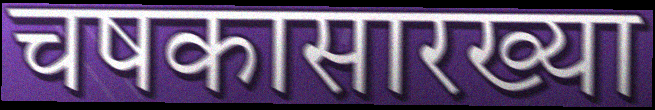
चषकासारख्या